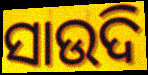
ସାଉଦି